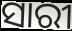
ସାରୀ